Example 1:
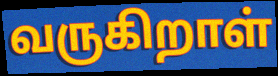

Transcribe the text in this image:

வருகிறாள்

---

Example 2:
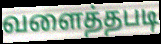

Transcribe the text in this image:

வளைத்தபடி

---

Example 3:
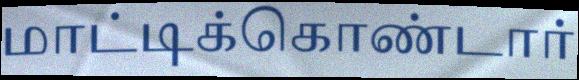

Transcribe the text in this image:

மாட்டிக்கொண்டார்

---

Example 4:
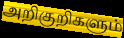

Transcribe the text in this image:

அறிகுறிகளும்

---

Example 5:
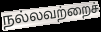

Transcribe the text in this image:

நல்லவற்றைச்